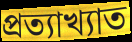
প্রত্যাখ্যাত